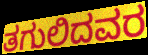
ತಗುಲಿದವರ